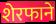
शेरफाने